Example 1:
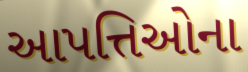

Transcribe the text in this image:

આપત્તિઓના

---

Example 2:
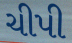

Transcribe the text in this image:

ચીપી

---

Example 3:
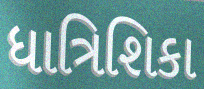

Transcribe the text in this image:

ધાત્રિશિકા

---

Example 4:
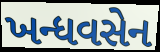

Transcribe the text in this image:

ખન્ધવસેન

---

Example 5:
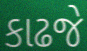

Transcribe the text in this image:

કાઢજે